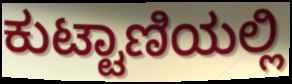
ಕುಟ್ಟಾಣಿಯಲ್ಲಿ